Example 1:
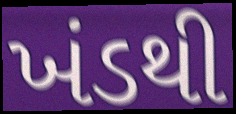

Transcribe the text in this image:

ખંડથી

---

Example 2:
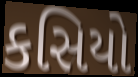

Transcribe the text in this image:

કસિયો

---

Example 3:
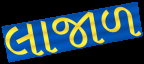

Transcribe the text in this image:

લાજાળ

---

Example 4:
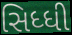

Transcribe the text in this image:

સિધ્ધી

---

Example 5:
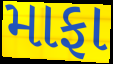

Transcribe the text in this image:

માફા